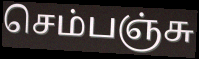
செம்பஞ்சு